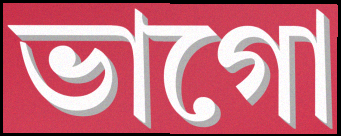
ভাগো